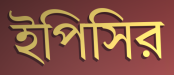
ইপিসির